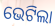
ଭେଟିଲା